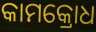
କାମକ୍ରୋଧ